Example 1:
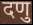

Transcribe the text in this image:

दणु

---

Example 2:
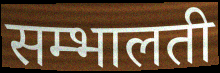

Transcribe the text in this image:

सम्भालती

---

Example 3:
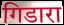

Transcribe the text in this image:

गिडारा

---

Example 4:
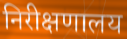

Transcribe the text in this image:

निरीक्षणालय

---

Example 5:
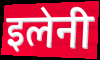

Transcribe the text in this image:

इलेनी